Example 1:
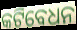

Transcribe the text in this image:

କଟିବେଧନ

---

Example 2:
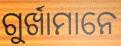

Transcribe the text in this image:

ଗୁର୍ଖାମାନେ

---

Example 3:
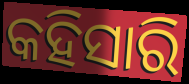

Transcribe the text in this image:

କହିସାରି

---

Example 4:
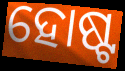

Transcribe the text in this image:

ହୋଷ୍ଟ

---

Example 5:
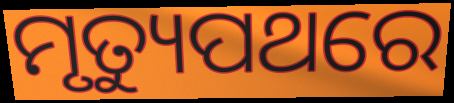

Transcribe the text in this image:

ମୃତ୍ୟୁପଥରେ